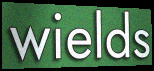
wields